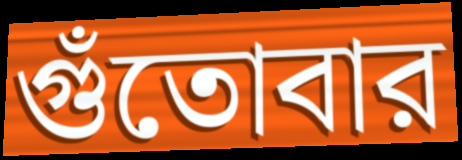
গুঁতোবার